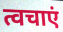
त्वचाएं